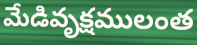
మేడివృక్షములంత